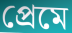
প্রেমে